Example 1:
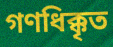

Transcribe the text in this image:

গণধিক্কৃত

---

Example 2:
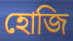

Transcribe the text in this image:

হোজি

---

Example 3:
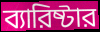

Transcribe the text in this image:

ব্যারিষ্টার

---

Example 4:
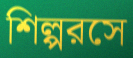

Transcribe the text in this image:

শিল্পরসে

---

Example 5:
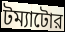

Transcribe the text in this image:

টম্যাটোর